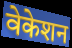
वेकेशन